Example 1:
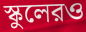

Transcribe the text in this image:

স্কুলেরও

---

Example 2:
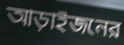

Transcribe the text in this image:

আড়াইজনের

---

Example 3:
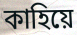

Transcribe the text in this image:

কাহিয়ে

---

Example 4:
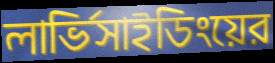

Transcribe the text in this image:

লার্ভিসাইডিংয়ের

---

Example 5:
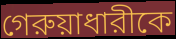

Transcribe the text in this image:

গেরুয়াধারীকে